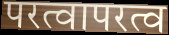
परत्वापरत्व